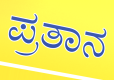
ಪ್ರತಾನ